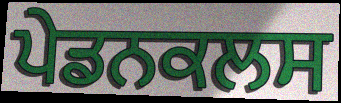
ਪੇਡਨਕਲਸ